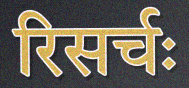
रिसर्चः